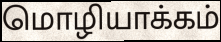
மொழியாக்கம்